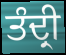
ਤੰਦ੍ਰੀ